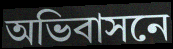
অভিবাসনে